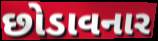
છોડાવનાર